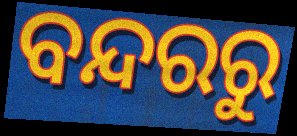
ବନ୍ଦରରୁ